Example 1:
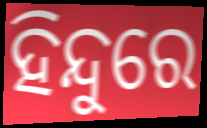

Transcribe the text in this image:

ହିନ୍ଦୁରେ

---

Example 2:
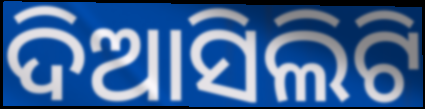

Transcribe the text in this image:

ଦିଆସିଲିଟି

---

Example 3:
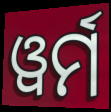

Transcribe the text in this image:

ୱର୍ମ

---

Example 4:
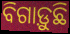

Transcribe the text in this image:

ବିଗାଡ଼ୁଛି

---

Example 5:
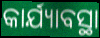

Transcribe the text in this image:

କାର୍ଯ୍ୟାବସ୍ଥା